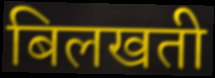
बिलखती